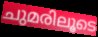
ചുമരിലൂടെ